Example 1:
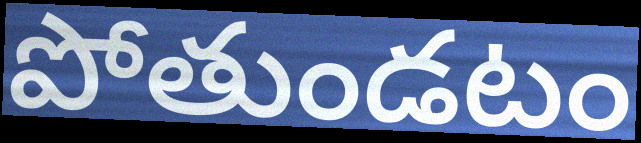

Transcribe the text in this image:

పోతుండటం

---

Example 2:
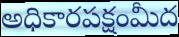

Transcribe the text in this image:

అధికారపక్షంమీద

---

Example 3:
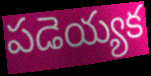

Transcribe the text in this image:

పడెయ్యక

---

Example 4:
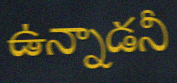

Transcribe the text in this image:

ఉన్నాడనీ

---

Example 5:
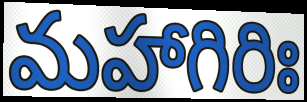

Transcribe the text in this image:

మహాగిరిః